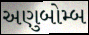
અણુબોમ્બ